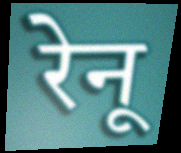
रेनू